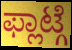
ಫ್ಲಾಟ್ಗೆ